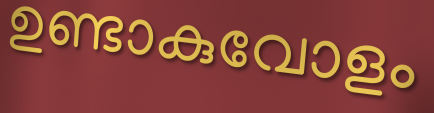
ഉണ്ടാകുവോളം